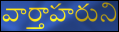
వార్తాహరుని